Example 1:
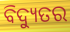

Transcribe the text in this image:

ବିଦ୍ୟୁତର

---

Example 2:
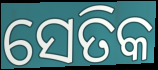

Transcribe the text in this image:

ସେତିକ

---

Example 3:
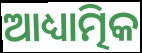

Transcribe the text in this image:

ଆଧ୍ୟାତ୍ମିକ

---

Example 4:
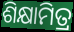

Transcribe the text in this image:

ଶିକ୍ଷାମିତ୍ର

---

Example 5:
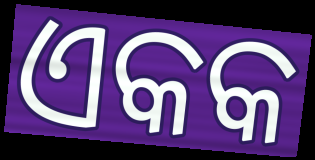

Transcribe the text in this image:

ଏକକ